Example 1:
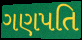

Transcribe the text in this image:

ગણપતિ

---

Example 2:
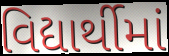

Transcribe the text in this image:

વિદ્યાર્થીમાં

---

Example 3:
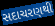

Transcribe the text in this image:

સદાચરણથી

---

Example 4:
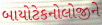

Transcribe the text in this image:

બાયોટેકનોલોજીને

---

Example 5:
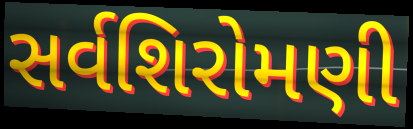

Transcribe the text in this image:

સર્વશિરોમણી